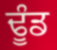
ਢੂੰਡ